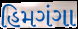
હિમગંગા